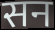
सन